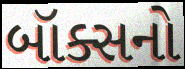
બૉક્સનો